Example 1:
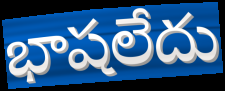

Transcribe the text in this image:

భాషలేదు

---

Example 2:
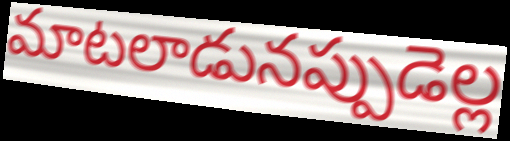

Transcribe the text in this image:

మాటలాడునప్పుడెల్ల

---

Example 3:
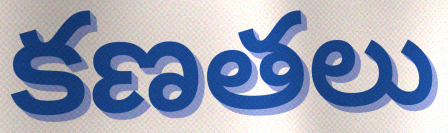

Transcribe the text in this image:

కణతలు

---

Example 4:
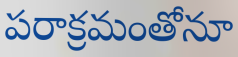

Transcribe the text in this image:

పరాక్రమంతోనూ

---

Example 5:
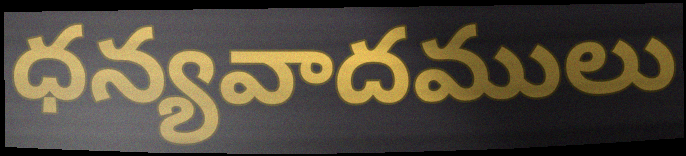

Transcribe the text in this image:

ధన్యవాదములు